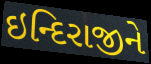
ઇન્દિરાજીને